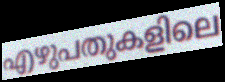
എഴുപതുകളിലെ